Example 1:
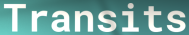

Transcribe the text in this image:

Transits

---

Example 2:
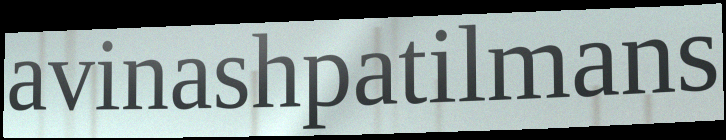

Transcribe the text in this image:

avinashpatilmans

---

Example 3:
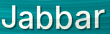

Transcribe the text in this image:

Jabbar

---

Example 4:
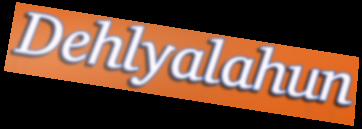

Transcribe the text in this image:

Dehlyalahun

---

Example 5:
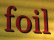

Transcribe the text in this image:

foil